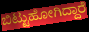
ಬಿಟ್ಟುಹೋಗಿದ್ದಾರೆ